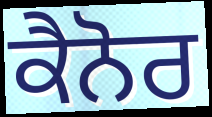
ਕੈਨੋਰ